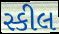
સ્કીલ